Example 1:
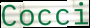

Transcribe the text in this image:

Cocci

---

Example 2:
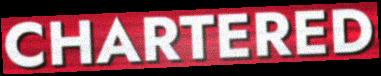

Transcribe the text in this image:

CHARTERED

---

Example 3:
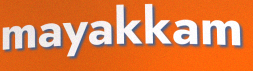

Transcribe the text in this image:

mayakkam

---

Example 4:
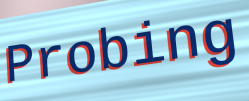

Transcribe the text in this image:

Probing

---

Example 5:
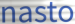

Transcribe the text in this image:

nasto